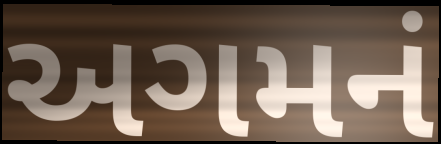
અગમનં